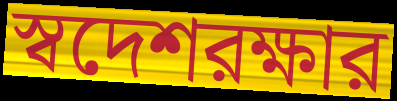
স্বদেশরক্ষার